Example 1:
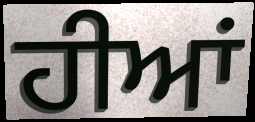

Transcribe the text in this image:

ਹੀਆਂ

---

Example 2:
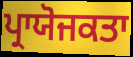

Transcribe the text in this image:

ਪ੍ਰਾਯੋਜਕਤਾ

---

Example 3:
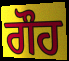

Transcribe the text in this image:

ਗੌਹ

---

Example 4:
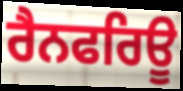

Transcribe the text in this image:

ਰੈਨਫਰਿਊ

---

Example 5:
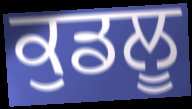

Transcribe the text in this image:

ਕੁਡਲੂ